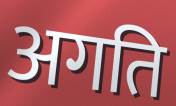
अगति